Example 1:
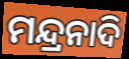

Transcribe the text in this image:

ମନ୍ଦ୍ରନାଦି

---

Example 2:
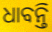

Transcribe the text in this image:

ଧାବନ୍ତି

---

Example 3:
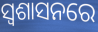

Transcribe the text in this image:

ସ୍ଵଶାସନରେ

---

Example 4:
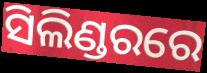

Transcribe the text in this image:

ସିଲିଣ୍ଡରରେ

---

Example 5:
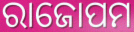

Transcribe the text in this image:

ରାଜୋପମ